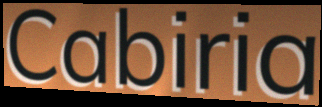
Cabiria